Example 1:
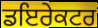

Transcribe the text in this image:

ਡਇਰੇਕਟਰ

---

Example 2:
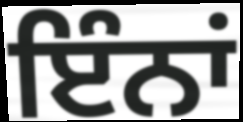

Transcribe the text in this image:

ਇੰਨਾਂ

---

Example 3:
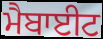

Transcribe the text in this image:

ਮੈਬਾਈਟ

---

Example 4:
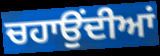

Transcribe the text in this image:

ਚਹਾਉਂਦੀਆਂ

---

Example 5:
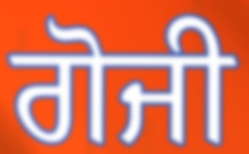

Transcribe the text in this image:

ਗੋਜੀ